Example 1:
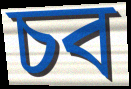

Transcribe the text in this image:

চব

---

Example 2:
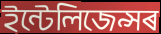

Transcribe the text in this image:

ইন্টেলিজেন্সৰ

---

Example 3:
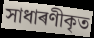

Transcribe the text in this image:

সাধাৰণীকৃত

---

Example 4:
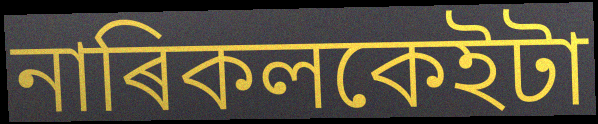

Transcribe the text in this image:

নাৰিকলকেইটা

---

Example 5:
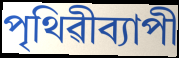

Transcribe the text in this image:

পৃথিৱীব্যাপী